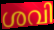
ശവി